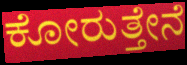
ಕೋರುತ್ತೇನೆ